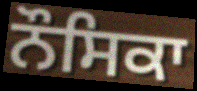
ਨੌਸਿਕਾ